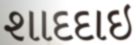
શાદદાઇ